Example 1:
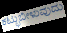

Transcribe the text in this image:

ಕಟ್ಟುಬೀಳುವುದು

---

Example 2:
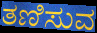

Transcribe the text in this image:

ತಣಿಸುವ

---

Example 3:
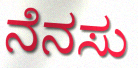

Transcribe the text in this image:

ನೆನಸು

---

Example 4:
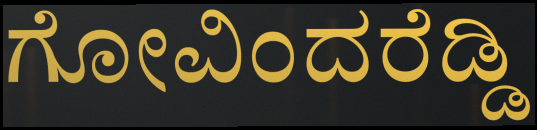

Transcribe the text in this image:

ಗೋವಿಂದರೆಡ್ಡಿ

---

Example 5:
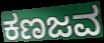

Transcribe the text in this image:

ಕಣಜವ